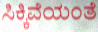
ಸಿಕ್ಕಿವೆಯಂತೆ